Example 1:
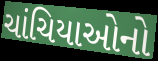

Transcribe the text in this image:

ચાંચિયાઓનો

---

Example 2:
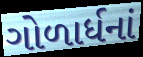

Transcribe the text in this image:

ગોળાર્ધનાં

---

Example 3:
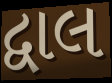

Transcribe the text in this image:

દ્વાલ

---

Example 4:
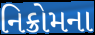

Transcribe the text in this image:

નિક્રોમના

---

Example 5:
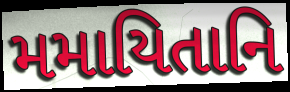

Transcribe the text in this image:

મમાયિતાનિ